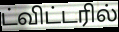
ட்விட்டரில்